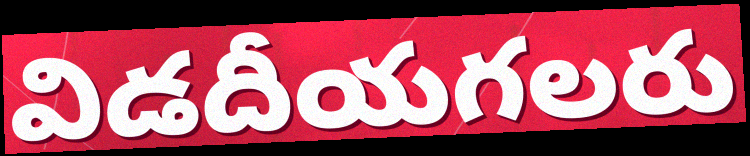
విడదీయగలరు